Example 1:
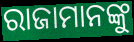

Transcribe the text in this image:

ରାଜାମାନଙ୍କୁ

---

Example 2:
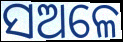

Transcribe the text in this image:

ସଅଳେ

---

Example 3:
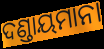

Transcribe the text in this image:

ଦଣ୍ଡାୟମାନା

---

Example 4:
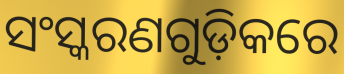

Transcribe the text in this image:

ସଂସ୍କରଣଗୁଡ଼ିକରେ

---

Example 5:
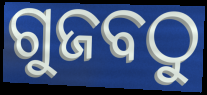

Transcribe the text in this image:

ଗୁଜବଠୁ